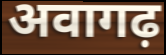
अवागढ़